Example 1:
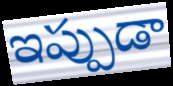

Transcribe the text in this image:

ఇప్పుడా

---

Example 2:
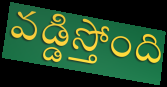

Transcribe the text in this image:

వడ్డిస్తోంది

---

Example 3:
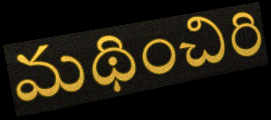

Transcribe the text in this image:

మథించిరి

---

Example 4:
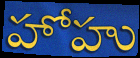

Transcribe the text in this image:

హోహు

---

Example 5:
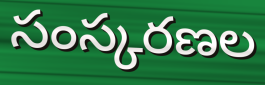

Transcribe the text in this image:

సంస్కరణల